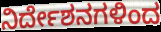
ನಿರ್ದೇಶನಗಳಿಂದ